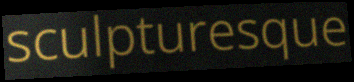
sculpturesque